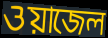
ওয়াজেল